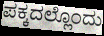
ಪಕ್ಕದಲ್ಲೊಂದು